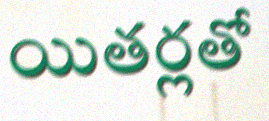
యితర్లతో